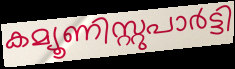
കമ്യൂണിസ്റ്റുപാർട്ടി